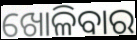
ଖୋଳିବାର